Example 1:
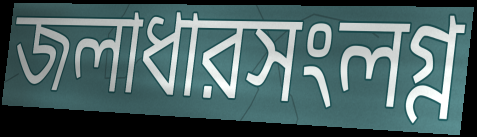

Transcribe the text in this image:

জলাধারসংলগ্ন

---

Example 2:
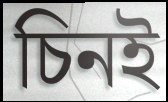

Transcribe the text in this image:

চিনই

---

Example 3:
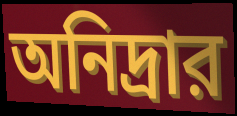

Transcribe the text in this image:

অনিদ্রার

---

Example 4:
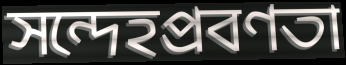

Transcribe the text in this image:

সন্দেহপ্রবণতা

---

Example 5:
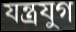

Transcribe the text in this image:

যন্ত্রযুগ